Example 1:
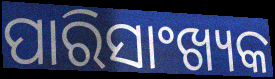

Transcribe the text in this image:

ପାରିସାଂଖ୍ୟକ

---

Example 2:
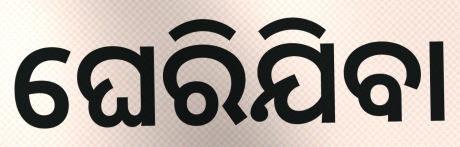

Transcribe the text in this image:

ଘେରିଯିବା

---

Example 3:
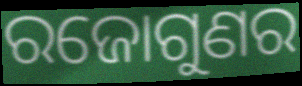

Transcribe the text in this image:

ରଜୋଗୁଣର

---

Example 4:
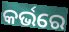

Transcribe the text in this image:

କର୍ଭରେ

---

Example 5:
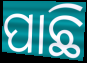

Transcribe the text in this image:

ପାଛି